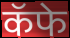
कॅफे